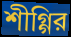
শীগ্গির